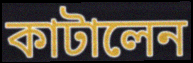
কাটালেন